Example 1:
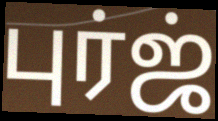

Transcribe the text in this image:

புர்ஜ்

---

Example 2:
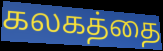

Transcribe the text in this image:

கலகத்தை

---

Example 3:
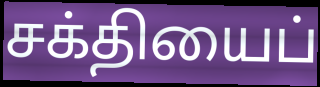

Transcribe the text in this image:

சக்தியைப்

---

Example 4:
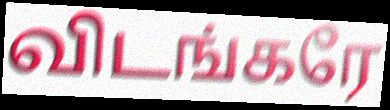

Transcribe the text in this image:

விடங்கரே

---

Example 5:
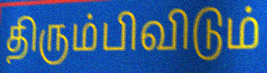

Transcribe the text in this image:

திரும்பிவிடும்